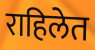
राहिलेत